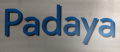
Padaya